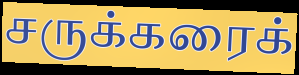
சருக்கரைக்